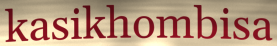
kasikhombisa